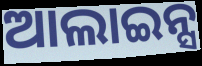
ଆଲାଇନ୍ସ